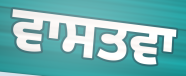
ਵਾਸਤਵਾ